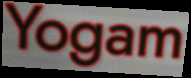
Yogam